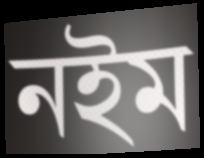
নইম